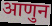
आणुन